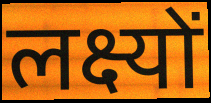
लक्ष्यों